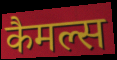
कैमल्स